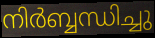
നിർബ്ബന്ധിച്ചു